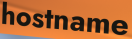
hostname